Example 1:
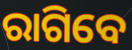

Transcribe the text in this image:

ରାଗିବେ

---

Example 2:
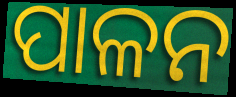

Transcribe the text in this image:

ପାଳନ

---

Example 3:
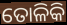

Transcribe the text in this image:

ତୋଳିକି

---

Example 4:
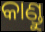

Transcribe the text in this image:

କାଣ୍ଡୁ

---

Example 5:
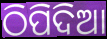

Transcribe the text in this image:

ଠିପିଦିଆ